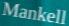
Mankell